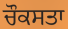
ਚੌਕਸਤਾ